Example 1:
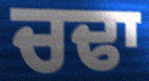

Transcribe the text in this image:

ਚਢਾ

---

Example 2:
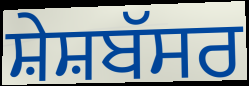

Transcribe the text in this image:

ਸ਼ੇਸ਼ਬੱਸਰ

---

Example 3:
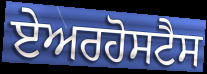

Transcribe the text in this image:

ਏਅਰਹੋਸਟੈਸ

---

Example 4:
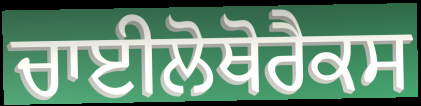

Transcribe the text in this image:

ਚਾਈਲੋਥੋਰੈਕਸ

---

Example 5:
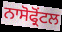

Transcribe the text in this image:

ਨਾਸੋਫ੍ਰੋਂਟਲ